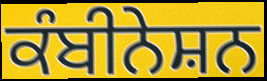
ਕੰਬੀਨੇਸ਼ਨ